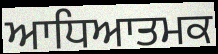
ਆਧਿਆਤਮਕ